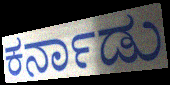
ಕರ್ನಾಡು